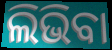
ଲିଭିବା